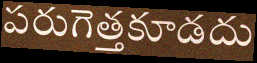
పరుగెత్తకూడదు